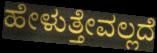
ಹೇಳುತ್ತೇವಲ್ಲದೆ